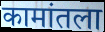
कामांतला